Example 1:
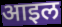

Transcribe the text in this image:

आइल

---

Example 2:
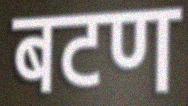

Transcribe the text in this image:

बटण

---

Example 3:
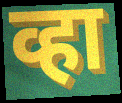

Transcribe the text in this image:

व्हा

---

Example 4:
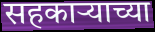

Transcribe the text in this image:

सहकार्‍याच्या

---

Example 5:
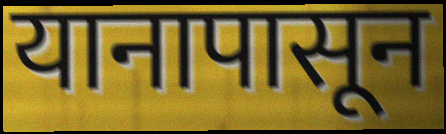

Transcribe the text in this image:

यानापासून